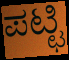
ಪಟ್ಟಿ